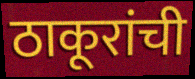
ठाकूरांची